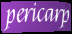
pericarp